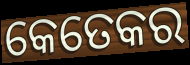
କେତେକର